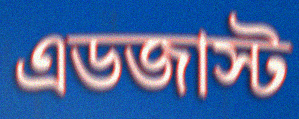
এডজাস্ট